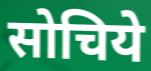
सोचिये